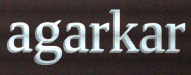
agarkar